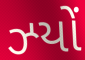
ઝ્યોં